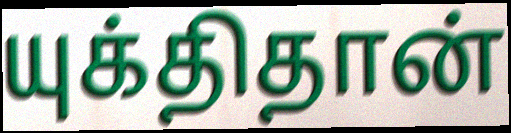
யுக்திதான்